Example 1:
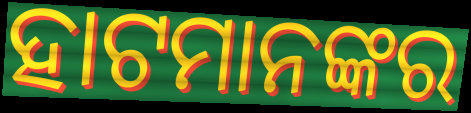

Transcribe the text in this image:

ହାଟମାନଙ୍କର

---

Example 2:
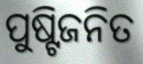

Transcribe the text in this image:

ପୁଷ୍ଟିଜନିତ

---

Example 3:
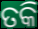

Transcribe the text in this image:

ତକି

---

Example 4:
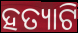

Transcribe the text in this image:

ହତ୍ୟାଟି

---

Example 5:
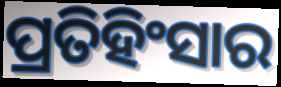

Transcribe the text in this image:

ପ୍ରତିହିଂସାର